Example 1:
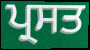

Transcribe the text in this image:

ਪ੍ਰਸਤ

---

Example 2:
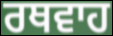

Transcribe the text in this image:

ਰਥਵਾਹ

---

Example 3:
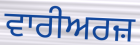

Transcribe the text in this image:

ਵਾਰੀਅਰਜ਼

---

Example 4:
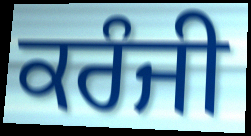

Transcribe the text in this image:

ਕਰੰਜੀ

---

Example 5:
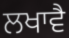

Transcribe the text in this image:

ਲਖਾਵੈ